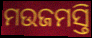
ମଉଜମସ୍ତି